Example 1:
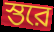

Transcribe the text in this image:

স্তরে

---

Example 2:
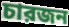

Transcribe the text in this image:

চারজন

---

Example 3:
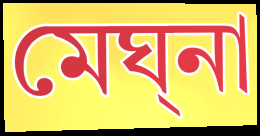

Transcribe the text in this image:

মেঘ্‌না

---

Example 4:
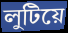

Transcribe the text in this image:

লুটিয়ে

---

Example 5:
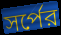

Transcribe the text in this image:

সর্পের